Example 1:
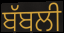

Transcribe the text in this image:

ਬੱਬਲੀ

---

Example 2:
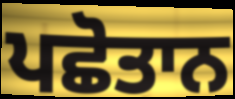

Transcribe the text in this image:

ਪਛੋਤਾਨ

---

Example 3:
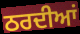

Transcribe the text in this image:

ਠਰਦੀਆਂ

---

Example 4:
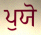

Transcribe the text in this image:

ਪੁਯੋ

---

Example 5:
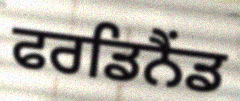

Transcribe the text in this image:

ਫਰਡਿਨੈਂਡ